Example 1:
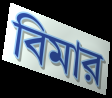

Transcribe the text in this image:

বিমার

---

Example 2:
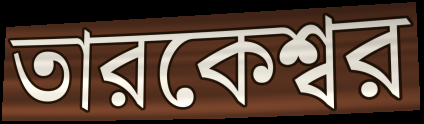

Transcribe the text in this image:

তারকেশ্বর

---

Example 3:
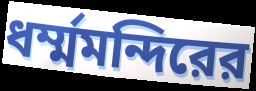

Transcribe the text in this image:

ধর্ম্মমন্দিরের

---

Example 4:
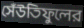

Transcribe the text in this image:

সেঁউতিফুলের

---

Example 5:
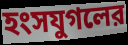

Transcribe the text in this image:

হংসযুগলের